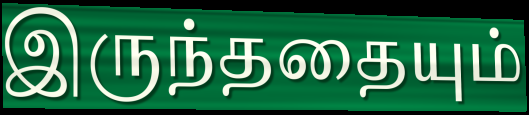
இருந்ததையும்